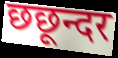
छछून्दर